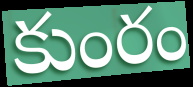
కుంరం